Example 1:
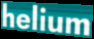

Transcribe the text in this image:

helium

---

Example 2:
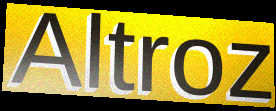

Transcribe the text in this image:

Altroz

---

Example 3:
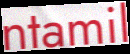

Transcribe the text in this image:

ntamil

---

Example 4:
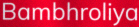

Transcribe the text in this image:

Bambhroliya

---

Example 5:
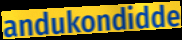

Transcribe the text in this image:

andukondidde